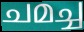
ചമച്ച